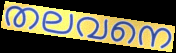
തലവനെ